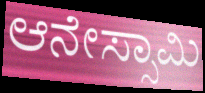
ಆನೇಸ್ಸಾಮಿ